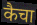
कैचा